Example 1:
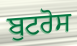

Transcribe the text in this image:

ਬੁਟਰੋਸ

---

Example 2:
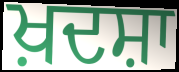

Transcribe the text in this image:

ਖ਼ਦਸ਼ਾ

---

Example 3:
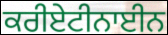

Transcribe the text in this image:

ਕਰੀਏਟੀਨਾਈਨ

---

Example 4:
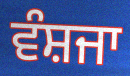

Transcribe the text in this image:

ਵੰਸ਼ਜਾ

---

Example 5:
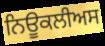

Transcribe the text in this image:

ਨਿਊਕਲੀਅਸ